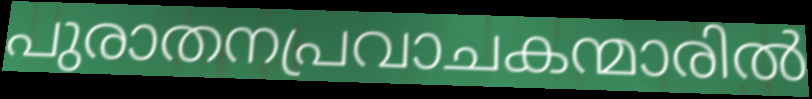
പുരാതനപ്രവാചകന്മാരിൽ